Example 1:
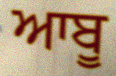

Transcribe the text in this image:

ਆਬੂ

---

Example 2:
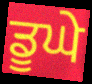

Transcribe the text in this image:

ਡੂਘੇ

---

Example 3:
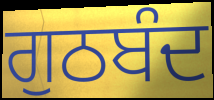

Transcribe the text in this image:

ਗੁਠਬੰਦ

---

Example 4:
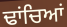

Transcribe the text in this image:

ਢਾਂਚਿਆਂ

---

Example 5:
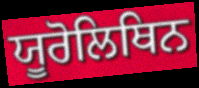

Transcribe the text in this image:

ਯੂਰੋਲਿਥਿਨ